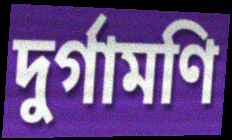
দুর্গামণি